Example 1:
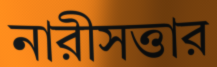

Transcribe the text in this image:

নারীসত্তার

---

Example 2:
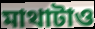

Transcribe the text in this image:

মাথাটাও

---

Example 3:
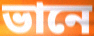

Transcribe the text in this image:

ভানে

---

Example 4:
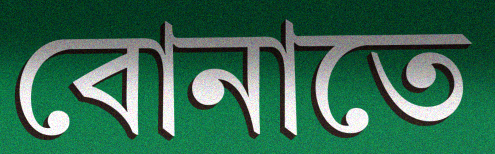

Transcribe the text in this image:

বোনাতে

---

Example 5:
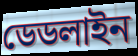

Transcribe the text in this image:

ডেডলাইন